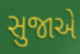
સુજાએ